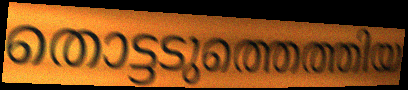
തൊട്ടടുത്തെത്തിയ